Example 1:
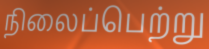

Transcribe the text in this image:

நிலைப்பெற்று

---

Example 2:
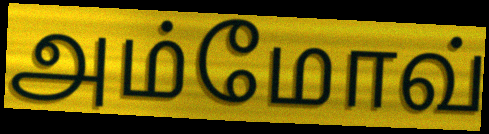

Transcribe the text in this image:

அம்மோவ்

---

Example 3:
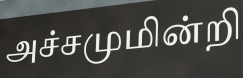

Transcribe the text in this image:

அச்சமுமின்றி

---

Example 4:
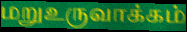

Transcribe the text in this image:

மறுஉருவாக்கம்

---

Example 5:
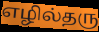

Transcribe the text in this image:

எழில்தரு